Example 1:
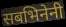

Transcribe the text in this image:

सबभिनेनी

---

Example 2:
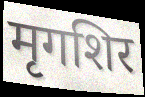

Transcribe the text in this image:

मृगशिर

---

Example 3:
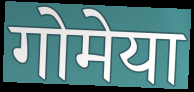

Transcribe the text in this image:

गोमेया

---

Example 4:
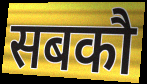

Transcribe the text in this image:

सबकौ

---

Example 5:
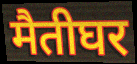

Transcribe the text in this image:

मैतीघर